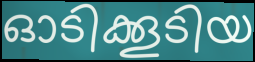
ഓടിക്കൂടിയ